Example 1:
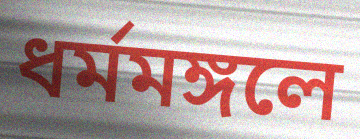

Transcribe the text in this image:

ধর্মমঙ্গলে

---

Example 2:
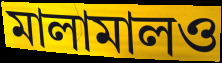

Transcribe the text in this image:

মালামালও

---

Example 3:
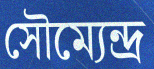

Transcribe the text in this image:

সৌম্যেন্দ্র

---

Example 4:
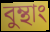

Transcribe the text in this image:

বুম্থাং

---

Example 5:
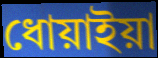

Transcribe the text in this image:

ধোয়াইয়া